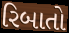
રિબાતો